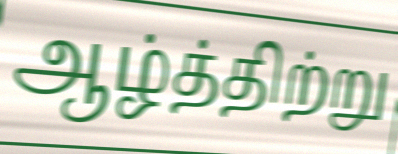
ஆழ்த்திற்று